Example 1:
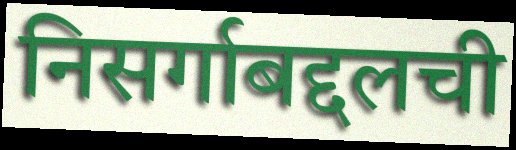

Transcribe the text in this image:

निसर्गाबद्दलची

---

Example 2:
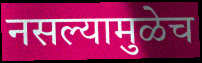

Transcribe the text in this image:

नसल्यामुळेच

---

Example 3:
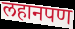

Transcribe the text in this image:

लहानपण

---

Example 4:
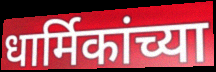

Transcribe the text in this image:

धार्मिकांच्या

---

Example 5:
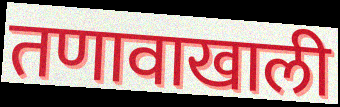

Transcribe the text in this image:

तणावाखाली